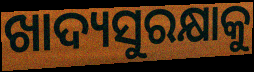
ଖାଦ୍ୟସୁରକ୍ଷାକୁ